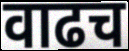
वाढच